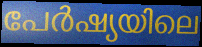
പേർഷ്യയിലെ